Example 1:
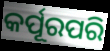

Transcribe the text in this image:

କର୍ପୂରପରି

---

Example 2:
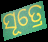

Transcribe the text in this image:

ସୂତ୍ରେ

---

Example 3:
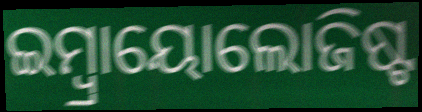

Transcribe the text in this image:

ଇମ୍ବ୍ରାୟୋଲୋଜିଷ୍ଟ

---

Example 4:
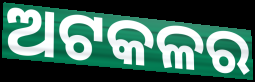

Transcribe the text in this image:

ଅଟକଳର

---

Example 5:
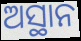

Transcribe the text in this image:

ଅସ୍ଥାନ